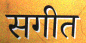
सगीत